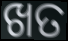
ଖତ